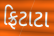
ફ્રિટાટા